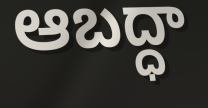
ఆబద్ధా